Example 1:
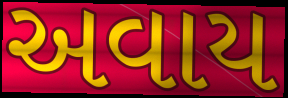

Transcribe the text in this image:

અવાય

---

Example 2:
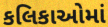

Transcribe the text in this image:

કલિકાઓમાં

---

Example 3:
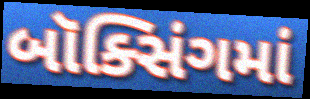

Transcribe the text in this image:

બૉક્સિંગમાં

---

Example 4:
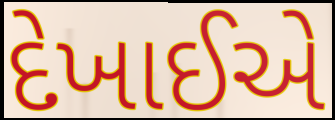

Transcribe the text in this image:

દેખાઈએ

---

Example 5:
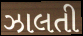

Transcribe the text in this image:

ઝાલતી